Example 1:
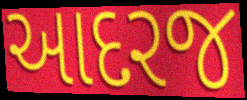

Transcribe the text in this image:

આદરજ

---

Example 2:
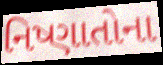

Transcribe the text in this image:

નિષ્ણાતોના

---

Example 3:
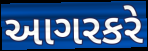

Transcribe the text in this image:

આગરકરે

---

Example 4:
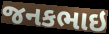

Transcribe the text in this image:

જનકભાઇ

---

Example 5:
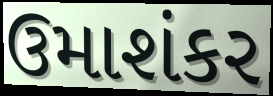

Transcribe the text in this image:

ઉમાશંકર